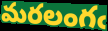
మరలంగఁ